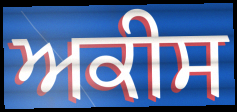
ਅਕੀਸ